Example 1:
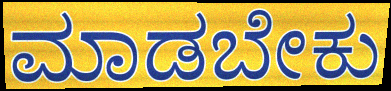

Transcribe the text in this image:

ಮಾಡಬೇಕು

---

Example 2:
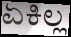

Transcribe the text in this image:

ಏಕಿಲ್ಲ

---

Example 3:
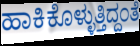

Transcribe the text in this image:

ಹಾಕಿಕೊಳ್ಳುತ್ತಿದ್ದಂತೆ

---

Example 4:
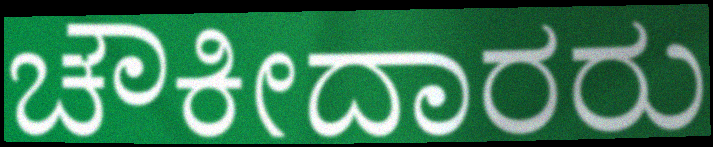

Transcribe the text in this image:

ಚೌಕೀದಾರರು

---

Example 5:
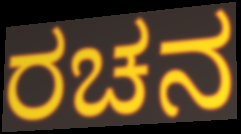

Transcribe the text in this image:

ರಚನ